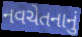
નવચેતનાનું